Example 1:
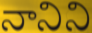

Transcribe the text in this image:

నానిని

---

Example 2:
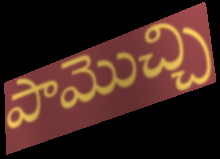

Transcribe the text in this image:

పామొచ్చి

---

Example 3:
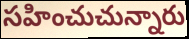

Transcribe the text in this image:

సహించుచున్నారు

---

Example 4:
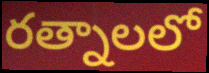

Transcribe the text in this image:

రత్నాలలో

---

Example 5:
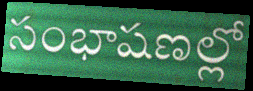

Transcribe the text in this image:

సంభాషణల్లో